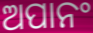
ଅପାନଂ